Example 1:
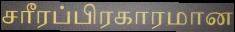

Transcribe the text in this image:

சரீரப்பிரகாரமான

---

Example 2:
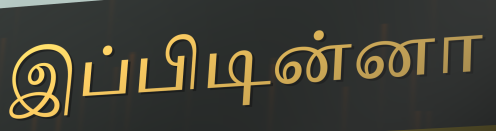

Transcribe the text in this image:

இப்பிடின்னா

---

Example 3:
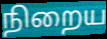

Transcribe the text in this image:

நிறைய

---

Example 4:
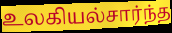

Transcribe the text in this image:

உலகியல்சார்ந்த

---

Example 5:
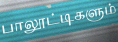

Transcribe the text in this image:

பாலூட்டிகளும்